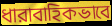
ধারাবাহিকভাবে